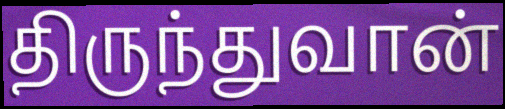
திருந்துவான்